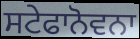
ਸਟੇਫਾਨੋਵਨਾ